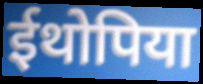
ईथोपिया